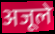
अजूले